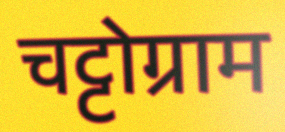
चट्टोग्राम